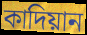
কাদিয়ান